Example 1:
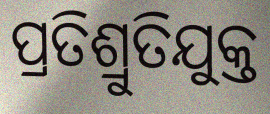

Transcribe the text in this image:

ପ୍ରତିଶ୍ରୁତିଯୁକ୍ତ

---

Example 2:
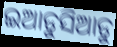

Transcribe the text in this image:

ଇଆଡୁସିଆଡୁ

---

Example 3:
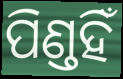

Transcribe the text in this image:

ପିଣ୍ଡହିଁ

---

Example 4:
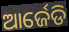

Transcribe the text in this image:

ଆର୍ଜେଡି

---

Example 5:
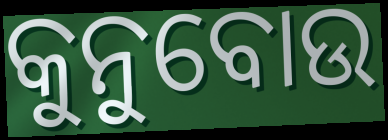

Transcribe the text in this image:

କୁନୁବୋଉ